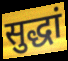
सुद्धां